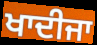
ਖਾਦੀਜਾ